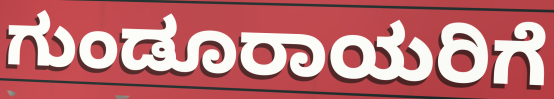
ಗುಂಡೂರಾಯರಿಗೆ